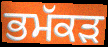
ਭਮੱਕੜ